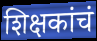
शिक्षकांचं